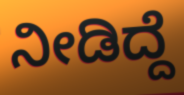
ನೀಡಿದ್ದೆ